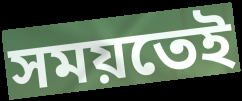
সময়তেই